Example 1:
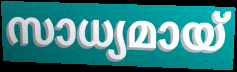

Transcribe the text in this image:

സാധ്യമായ്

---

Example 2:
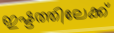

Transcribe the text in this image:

ഇഷ്ടത്തിലേക്ക്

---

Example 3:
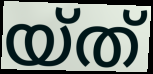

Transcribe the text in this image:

യ്ത്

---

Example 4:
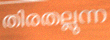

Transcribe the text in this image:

തിരതല്ലുന്ന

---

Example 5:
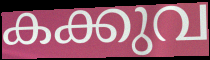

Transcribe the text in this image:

കക്കുവ